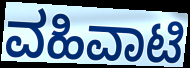
ವಹಿವಾಟಿ